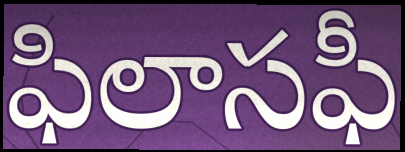
ఫిలాసఫీ